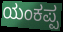
ಯಂಕಪ್ಪ